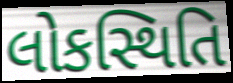
લોકસ્થિતિ